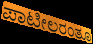
ಪಾಟೀಲರಂತೂ